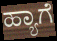
ಹ್ಯಾಗೆ